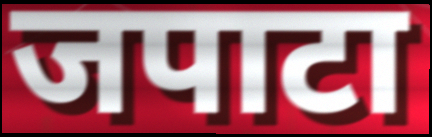
जपाटा